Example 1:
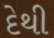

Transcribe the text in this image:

દેથી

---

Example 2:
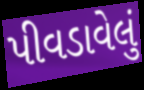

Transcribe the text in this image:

પીવડાવેલું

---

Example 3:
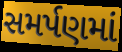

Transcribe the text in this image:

સમર્પણમાં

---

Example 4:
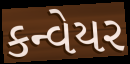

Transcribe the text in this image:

કન્વેયર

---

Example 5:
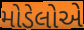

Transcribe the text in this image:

મોડેલોએ